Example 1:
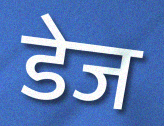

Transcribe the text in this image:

डेज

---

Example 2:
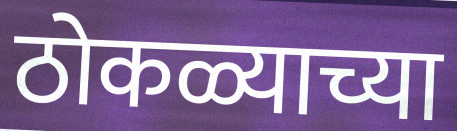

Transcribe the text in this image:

ठोकळ्याच्या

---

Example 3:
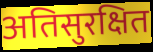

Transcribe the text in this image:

अतिसुरक्षित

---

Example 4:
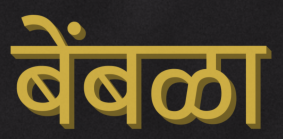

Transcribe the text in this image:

बेंबळा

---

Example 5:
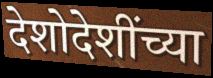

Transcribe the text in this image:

देशोदेशींच्या